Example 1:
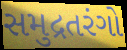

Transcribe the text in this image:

સમુદ્રતરંગો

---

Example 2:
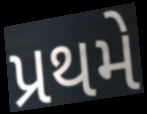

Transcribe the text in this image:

પ્રથમે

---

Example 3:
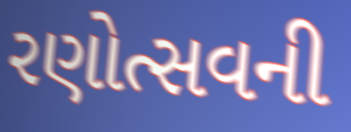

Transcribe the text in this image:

રણોત્સવની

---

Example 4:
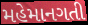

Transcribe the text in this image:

મહેમાનગતી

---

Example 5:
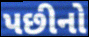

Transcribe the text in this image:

પછીનો